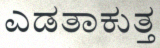
ಎಡತಾಕುತ್ತ